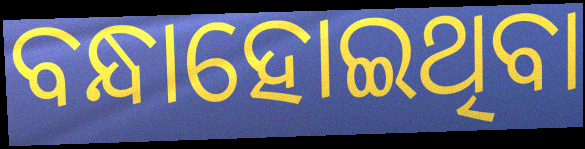
ବନ୍ଧାହୋଇଥିବା